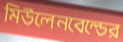
মিউলেনবেল্ডের